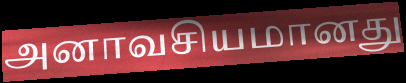
அனாவசியமானது